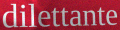
dilettante